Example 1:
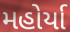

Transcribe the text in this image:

મહોર્યા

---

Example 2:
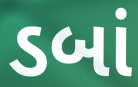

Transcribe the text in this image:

ડબાં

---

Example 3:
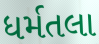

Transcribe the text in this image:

ધર્મતલા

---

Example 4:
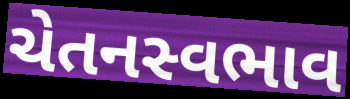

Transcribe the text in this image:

ચેતનસ્વભાવ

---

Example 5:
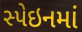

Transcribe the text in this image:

સ્પેઇનમાં